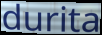
durita